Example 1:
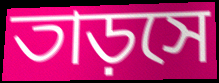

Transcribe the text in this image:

তাড়সে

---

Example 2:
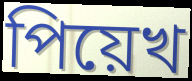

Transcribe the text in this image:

পিয়েখ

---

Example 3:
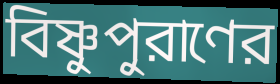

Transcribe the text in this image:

বিষ্ণুপুরাণের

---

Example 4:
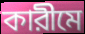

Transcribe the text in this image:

কারীমে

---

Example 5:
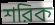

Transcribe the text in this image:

শরিক